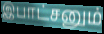
இபாட்சனும்